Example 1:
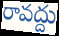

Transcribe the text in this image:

రావద్దు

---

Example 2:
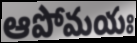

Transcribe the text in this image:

ఆపోమయః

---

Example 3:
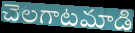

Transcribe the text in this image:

చెలగాటమాడి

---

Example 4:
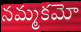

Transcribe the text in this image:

నమ్మకమో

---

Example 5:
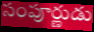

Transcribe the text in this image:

సంపూర్ణుడు